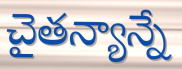
చైతన్యాన్నే